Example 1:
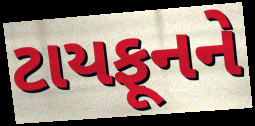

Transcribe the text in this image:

ટાયફૂનને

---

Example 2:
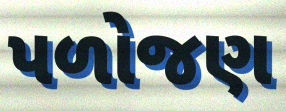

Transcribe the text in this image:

પળોજણ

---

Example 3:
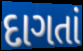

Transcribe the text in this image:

દાગતાં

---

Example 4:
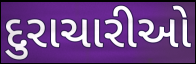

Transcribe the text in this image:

દુરાચારીઓ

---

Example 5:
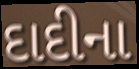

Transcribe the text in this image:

દાદીના